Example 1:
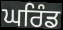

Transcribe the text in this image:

ਘਰਿੰਡ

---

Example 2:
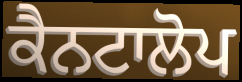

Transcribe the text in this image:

ਕੈਨਟਾਲੋਪ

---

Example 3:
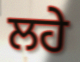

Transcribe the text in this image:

ਲਹੇ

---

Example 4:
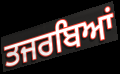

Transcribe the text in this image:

ਤਜਰਬਿਆਂ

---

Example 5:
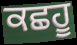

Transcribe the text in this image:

ਕਛਹੂ